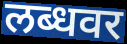
लब्धवर